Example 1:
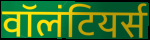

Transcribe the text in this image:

वॉलंटियर्स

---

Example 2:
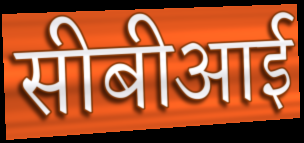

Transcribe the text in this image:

सीबीआई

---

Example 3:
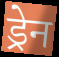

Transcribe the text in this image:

ड्रेन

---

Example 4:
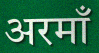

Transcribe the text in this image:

अरमाँ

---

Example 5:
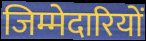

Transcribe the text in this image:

जिम्मेदारियों